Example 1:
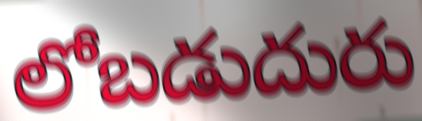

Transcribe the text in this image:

లోబడుదురు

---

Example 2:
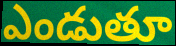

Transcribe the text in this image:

ఎండుతూ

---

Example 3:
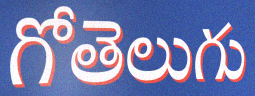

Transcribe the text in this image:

గోతెలుగు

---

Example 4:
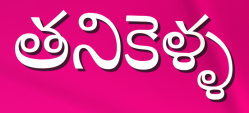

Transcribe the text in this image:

తనికెళ్ళ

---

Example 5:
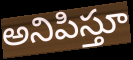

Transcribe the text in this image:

అనిపిస్తూ